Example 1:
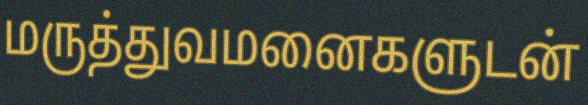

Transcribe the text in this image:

மருத்துவமனைகளுடன்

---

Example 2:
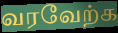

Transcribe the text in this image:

வரவேற்க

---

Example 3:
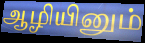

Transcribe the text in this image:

ஆழியினும்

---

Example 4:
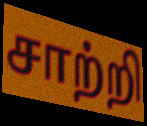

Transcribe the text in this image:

சாற்றி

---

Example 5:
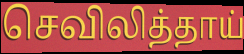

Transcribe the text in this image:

செவிலித்தாய்